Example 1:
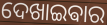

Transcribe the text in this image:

ଦେଖାଇଵାର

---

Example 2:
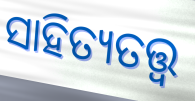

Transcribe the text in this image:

ସାହିତ୍ୟତତ୍ତ୍ୱ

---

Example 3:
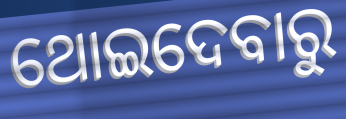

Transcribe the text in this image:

ଥୋଇଦେବାରୁ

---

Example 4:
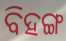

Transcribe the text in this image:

ବିହଙ୍ଗ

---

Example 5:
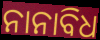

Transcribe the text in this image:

ନାନାବିଧ